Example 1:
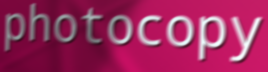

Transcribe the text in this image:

photocopy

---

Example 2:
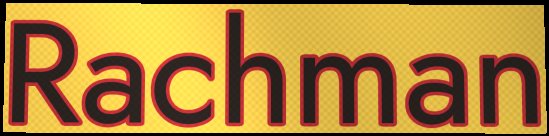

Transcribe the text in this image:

Rachman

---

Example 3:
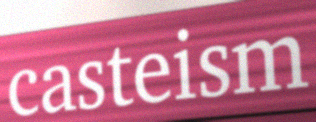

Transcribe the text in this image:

casteism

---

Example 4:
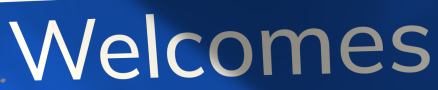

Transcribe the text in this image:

Welcomes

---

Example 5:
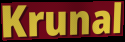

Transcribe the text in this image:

Krunal